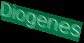
Diogenes